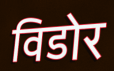
विडोर